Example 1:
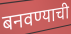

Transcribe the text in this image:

बनवण्याची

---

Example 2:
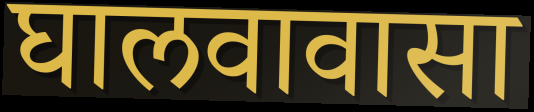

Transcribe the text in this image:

घालवावासा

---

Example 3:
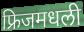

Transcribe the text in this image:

फ्रिजमधली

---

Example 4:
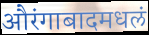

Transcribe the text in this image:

औरंगाबादमधलं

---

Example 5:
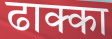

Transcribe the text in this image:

ढाक्का